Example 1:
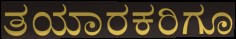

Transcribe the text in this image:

ತಯಾರಕರಿಗೂ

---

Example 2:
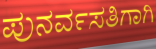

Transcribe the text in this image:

ಪುನರ್ವಸತಿಗಾಗಿ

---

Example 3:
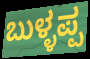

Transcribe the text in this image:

ಬುಳ್ಳಪ್ಪ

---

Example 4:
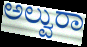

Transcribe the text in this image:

ಅಲ್ವುರಾ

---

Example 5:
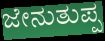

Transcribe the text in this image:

ಜೇನುತುಪ್ಪ